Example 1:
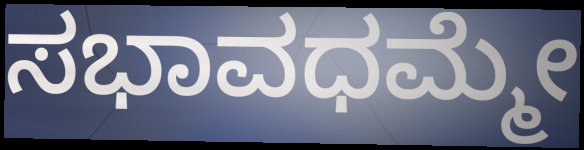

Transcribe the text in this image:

ಸಭಾವಧಮ್ಮೇ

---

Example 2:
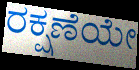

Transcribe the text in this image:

ರಕ್ಷಣೆಯೇ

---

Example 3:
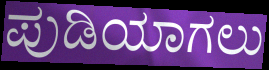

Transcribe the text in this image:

ಪುಡಿಯಾಗಲು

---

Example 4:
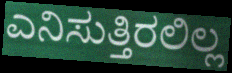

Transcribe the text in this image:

ಎನಿಸುತ್ತಿರಲಿಲ್ಲ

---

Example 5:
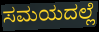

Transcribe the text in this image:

ಸಮಯದಲ್ಲೆ